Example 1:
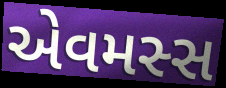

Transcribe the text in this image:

એવમસ્સ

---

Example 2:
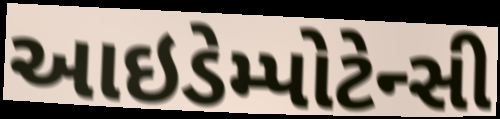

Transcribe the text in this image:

આઇડેમ્પોટેન્સી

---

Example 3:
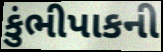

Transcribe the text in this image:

કુંભીપાકની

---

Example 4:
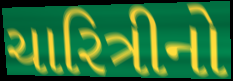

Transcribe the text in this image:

ચારિત્રીનો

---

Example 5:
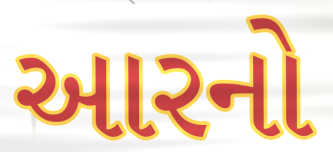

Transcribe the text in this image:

આરનો